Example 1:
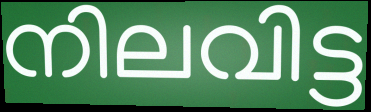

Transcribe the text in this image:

നിലവിട്ട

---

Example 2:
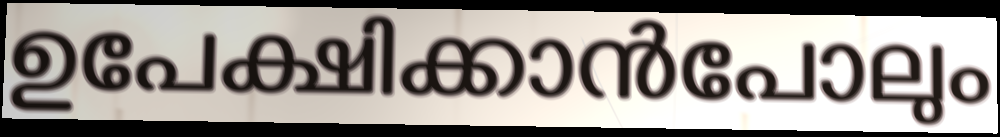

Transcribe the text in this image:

ഉപേക്ഷിക്കാൻപോലും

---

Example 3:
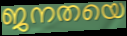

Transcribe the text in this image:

ജനതയെ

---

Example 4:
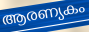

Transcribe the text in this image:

ആരണ്യകം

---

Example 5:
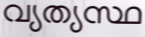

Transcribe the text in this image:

വ്യത്യസ്ഥ